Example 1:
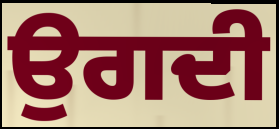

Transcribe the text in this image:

ਉਗਦੀ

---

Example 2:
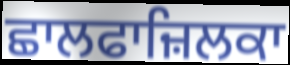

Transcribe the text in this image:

ਛਾਲਫਾਜ਼ਿਲਕਾ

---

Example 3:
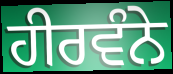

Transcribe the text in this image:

ਹੀਰਵੰਨੇ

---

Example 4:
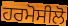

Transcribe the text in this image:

ਹਰਮੋਸੀਲੋ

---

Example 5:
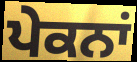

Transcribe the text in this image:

ਪੇਕਨਾਂ